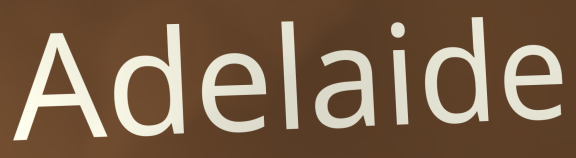
Adelaide